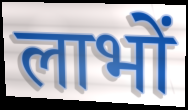
लाभों